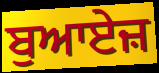
ਬੁਆਏਜ਼